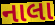
નાલા